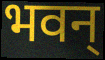
भवन्